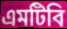
এমটিবি